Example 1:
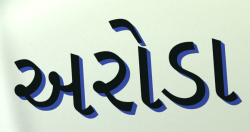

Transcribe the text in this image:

અરોડા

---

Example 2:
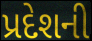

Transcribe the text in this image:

પ્રદેશની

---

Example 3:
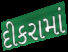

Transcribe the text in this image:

દીકરામાં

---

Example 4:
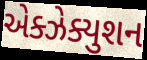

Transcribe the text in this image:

એક્ઝેક્યુશન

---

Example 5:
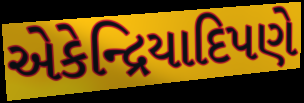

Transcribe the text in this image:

એકેન્દ્રિયાદિપણે